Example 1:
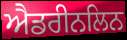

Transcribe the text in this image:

ਐਡਰੀਨਲਿਨ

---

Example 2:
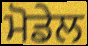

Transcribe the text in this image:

ਮੋਡੇਲ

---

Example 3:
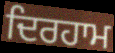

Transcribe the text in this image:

ਦਿਰਹਾਮ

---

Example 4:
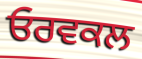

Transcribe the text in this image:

ਓਰਵਕਲ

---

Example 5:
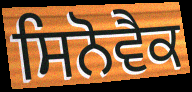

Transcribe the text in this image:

ਸਿਨੋਵੈਕ